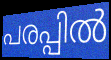
പരപ്പിൽ